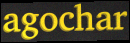
agochar